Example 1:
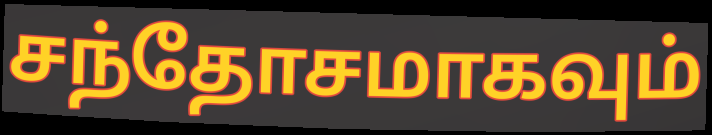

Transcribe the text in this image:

சந்தோசமாகவும்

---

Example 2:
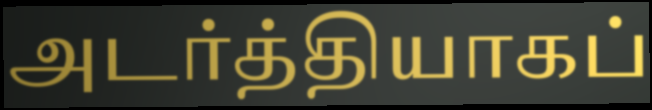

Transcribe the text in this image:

அடர்த்தியாகப்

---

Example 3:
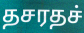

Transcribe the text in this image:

தசரதச்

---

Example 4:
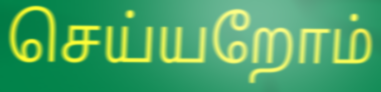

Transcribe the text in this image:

செய்யறோம்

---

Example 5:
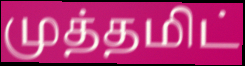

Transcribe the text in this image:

முத்தமிட்